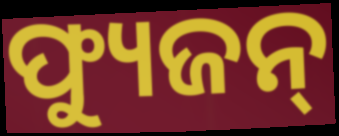
ଫ୍ୟୁଜନ୍